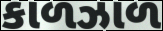
કાળઝાળ